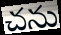
చను